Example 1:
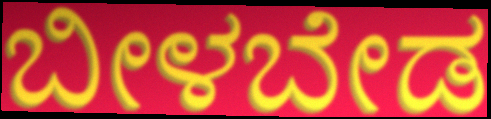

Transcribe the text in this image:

ಬೀಳಬೇಡ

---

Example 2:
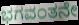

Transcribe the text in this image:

ಭಗವಂತನೇ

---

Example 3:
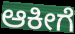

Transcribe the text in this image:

ಆಕೀಗೆ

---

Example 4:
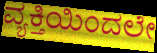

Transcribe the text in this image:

ವ್ಯಕ್ತಿಯಿಂದಲೇ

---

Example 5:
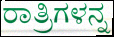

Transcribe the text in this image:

ರಾತ್ರಿಗಳನ್ನ